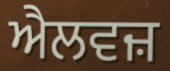
ਐਲਵਜ਼